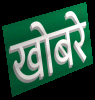
खोबरे